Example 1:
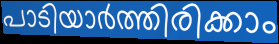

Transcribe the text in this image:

പാടിയാർത്തിരിക്കാം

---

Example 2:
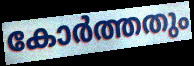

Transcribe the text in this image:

കോർത്തതും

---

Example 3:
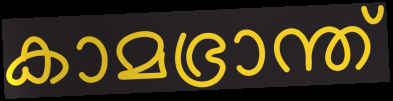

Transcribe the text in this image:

കാമഭ്രാന്ത്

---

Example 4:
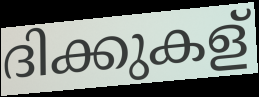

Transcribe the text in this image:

ദിക്കുകള്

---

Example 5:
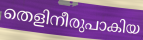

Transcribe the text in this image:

തെളിനീരുപാകിയ